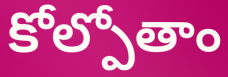
కోల్పోతాం